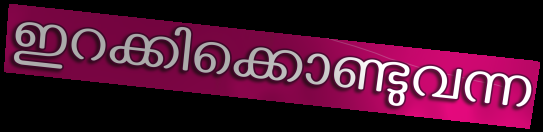
ഇറക്കിക്കൊണ്ടുവന്ന